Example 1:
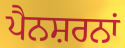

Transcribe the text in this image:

ਪੈਨਸ਼ਰਨਾਂ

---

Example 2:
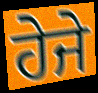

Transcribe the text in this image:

ਹੇਜੇ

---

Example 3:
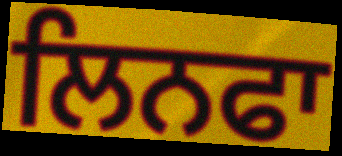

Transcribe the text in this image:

ਲਿਨਫਾ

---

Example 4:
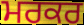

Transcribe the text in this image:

ਮਰਕਰ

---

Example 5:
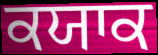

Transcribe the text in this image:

ਕਯਾਕ